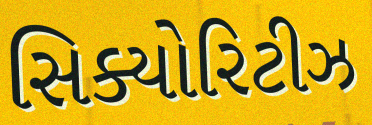
સિક્યોરિટીઝ